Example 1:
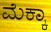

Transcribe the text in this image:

ಮೆಕ್ಕಾ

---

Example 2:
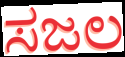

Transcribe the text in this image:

ಸಜಲ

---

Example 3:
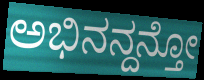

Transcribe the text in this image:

ಅಭಿನನ್ದನ್ತೋ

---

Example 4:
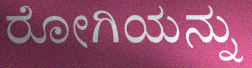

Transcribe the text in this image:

ರೋಗಿಯನ್ನು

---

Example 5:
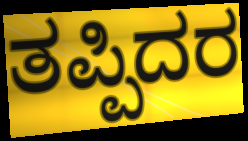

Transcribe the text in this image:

ತಪ್ಪಿದರ